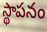
స్థాపనం